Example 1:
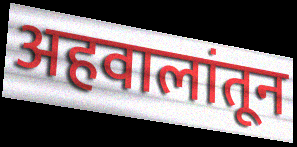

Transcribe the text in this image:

अहवालांतून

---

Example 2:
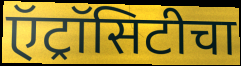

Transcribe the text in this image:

ऍट्रॉसिटीचा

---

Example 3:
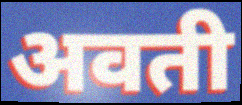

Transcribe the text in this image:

अवती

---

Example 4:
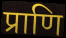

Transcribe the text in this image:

प्राणि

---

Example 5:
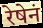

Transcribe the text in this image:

रेषेनं